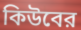
কিউবের